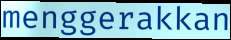
menggerakkan